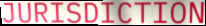
JURISDICTION